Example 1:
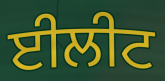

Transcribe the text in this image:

ਈਲੀਟ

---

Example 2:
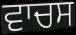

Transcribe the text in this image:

ਵਾਚਸ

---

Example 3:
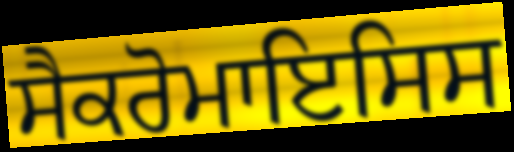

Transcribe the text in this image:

ਸੈਕਰੋਮਾਇਸਿਸ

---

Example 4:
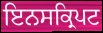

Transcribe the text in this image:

ਇਨਸਕ੍ਰਿਪਟ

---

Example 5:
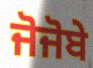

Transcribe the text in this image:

ਜੋਜੋਬੇ